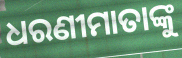
ଧରଣୀମାତାଙ୍କୁ